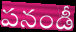
పనండీ